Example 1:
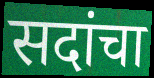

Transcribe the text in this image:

सदांचा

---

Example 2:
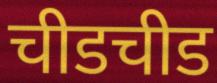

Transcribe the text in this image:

चीडचीड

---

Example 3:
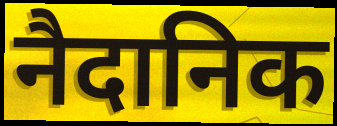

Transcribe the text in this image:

नैदानिक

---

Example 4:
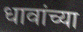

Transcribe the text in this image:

धावांच्या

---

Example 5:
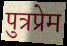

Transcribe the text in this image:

पुत्रप्रेम